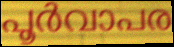
പൂർവാപര